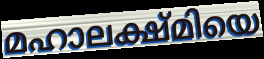
മഹാലക്ഷ്മിയെ